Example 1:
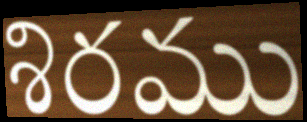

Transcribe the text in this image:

శిరము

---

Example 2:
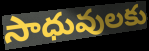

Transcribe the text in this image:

సాధువులకు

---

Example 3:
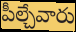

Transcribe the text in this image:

పీల్చేవారు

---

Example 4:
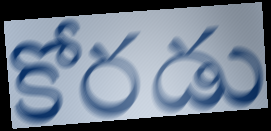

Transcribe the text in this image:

కోరడు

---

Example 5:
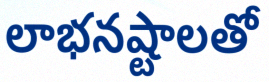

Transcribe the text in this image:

లాభనష్టాలతో